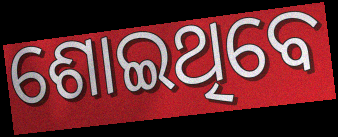
ଶୋଇଥିବେ